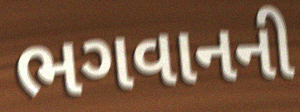
ભગવાનની